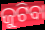
ଜୁଟିବା